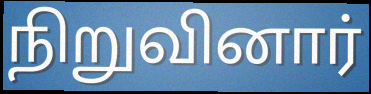
நிறுவினார்